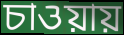
চাওয়ায়